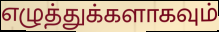
எழுத்துக்களாகவும்